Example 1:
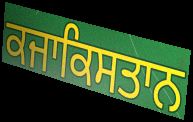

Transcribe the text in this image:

ਕਜਾਕਿਸਤਾਨ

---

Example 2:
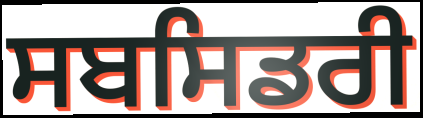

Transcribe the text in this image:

ਸਬਸਿਡਰੀ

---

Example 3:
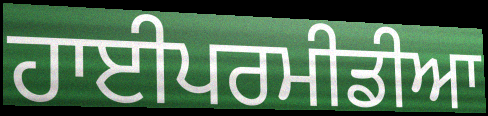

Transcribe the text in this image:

ਹਾਈਪਰਮੀਡੀਆ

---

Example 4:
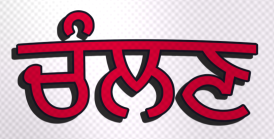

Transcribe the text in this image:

ਚੰਲਣ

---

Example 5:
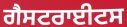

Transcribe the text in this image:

ਗੈਸਟਰਾਈਟਸ